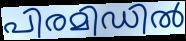
പിരമിഡിൽ